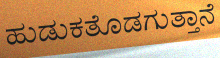
ಹುಡುಕತೊಡಗುತ್ತಾನೆ